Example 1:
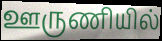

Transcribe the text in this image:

ஊருணியில்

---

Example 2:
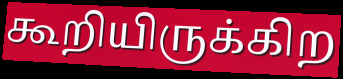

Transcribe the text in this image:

கூறியிருக்கிற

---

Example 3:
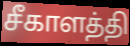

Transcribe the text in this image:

சீகாளத்தி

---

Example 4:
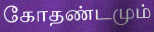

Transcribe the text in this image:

கோதண்டமும்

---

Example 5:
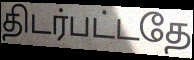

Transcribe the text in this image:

திடர்பட்டதே